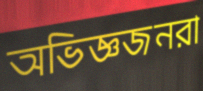
অভিজ্ঞজনরা